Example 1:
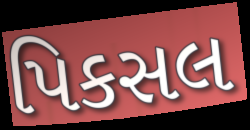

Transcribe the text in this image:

પિકસલ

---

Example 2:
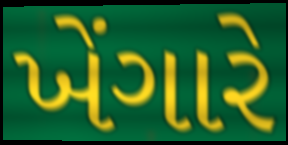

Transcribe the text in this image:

ખેંગારે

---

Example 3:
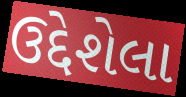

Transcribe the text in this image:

ઉદ્દેશેલા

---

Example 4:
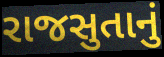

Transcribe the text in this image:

રાજસુતાનું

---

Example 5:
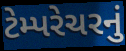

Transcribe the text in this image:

ટેમ્પરેચરનું